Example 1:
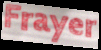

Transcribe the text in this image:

Frayer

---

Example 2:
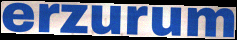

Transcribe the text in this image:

erzurum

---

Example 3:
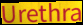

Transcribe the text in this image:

Urethra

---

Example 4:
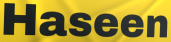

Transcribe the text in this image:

Haseen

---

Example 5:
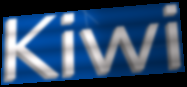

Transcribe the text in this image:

Kiwi